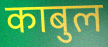
काबुल